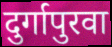
दुर्गापुरवा